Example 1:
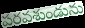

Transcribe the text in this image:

పరవశుండును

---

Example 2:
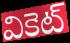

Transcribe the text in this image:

వికెట్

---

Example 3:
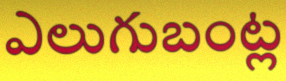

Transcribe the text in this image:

ఎలుగుబంట్ల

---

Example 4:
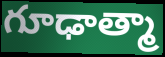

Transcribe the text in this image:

గూఢాత్మా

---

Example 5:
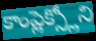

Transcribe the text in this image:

కాంప్లెక్స్లోని